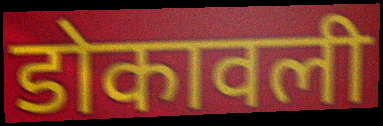
डोकावली